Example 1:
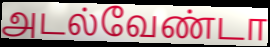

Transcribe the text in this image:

அடல்வேண்டா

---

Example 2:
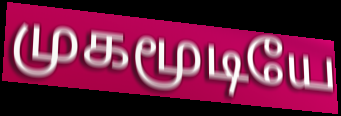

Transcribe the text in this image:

முகமூடியே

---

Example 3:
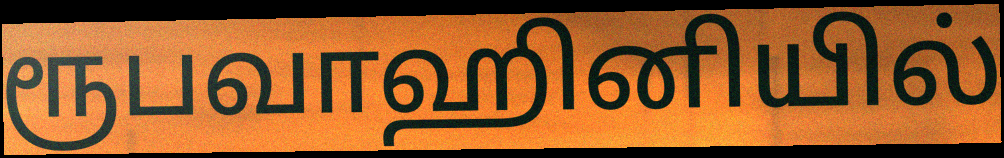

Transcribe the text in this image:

ரூபவாஹினியில்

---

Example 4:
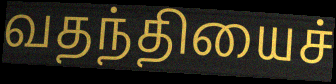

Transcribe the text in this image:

வதந்தியைச்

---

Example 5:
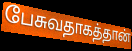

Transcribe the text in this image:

பேசுவதாகத்தான்